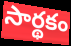
సార్థకం